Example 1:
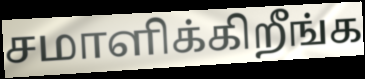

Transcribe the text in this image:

சமாளிக்கிறீங்க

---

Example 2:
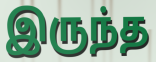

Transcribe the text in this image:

இருந்த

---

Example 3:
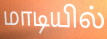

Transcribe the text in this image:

மாடியில்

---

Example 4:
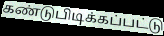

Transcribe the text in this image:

கண்டுபிடிக்கப்பட்டு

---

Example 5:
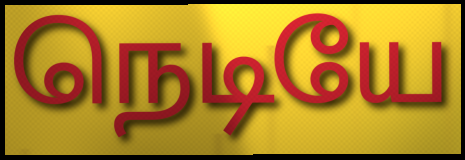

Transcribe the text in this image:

நெடியே